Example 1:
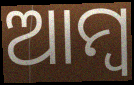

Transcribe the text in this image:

ଆମ୍ୱ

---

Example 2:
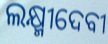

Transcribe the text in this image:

ଲକ୍ଷ୍ମୀଦେବୀ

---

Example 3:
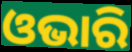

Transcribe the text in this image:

ଓଭାରି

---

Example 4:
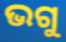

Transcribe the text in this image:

ଭଗୁ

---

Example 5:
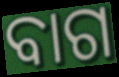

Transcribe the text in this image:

ବାଗ